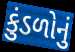
કુંડળોનું